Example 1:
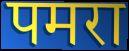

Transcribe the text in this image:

पमरा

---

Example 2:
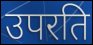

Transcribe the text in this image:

उपरति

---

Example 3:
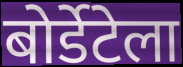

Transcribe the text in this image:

बोर्डेटेला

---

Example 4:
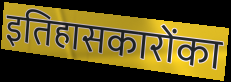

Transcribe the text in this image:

इतिहासकारोंका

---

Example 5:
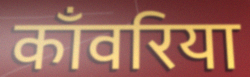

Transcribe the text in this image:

काँवरिया